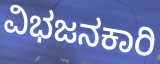
ವಿಭಜನಕಾರಿ